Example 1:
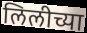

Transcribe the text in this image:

लिलीच्या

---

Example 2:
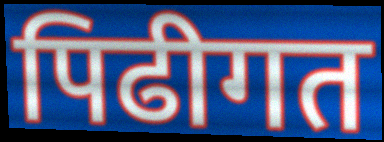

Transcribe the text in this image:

पिढीगत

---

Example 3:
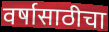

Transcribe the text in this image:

वर्षासाठीचा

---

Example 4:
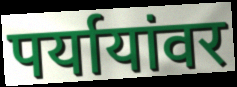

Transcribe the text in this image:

पर्यायांवर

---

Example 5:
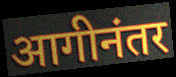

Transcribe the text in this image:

आगीनंतर